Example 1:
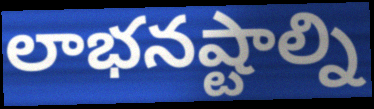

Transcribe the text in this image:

లాభనష్టాల్ని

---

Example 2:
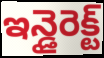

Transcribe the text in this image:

ఇన్డైరెక్ట్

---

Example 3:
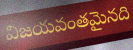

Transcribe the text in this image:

విజయవంతమైనది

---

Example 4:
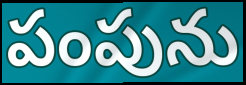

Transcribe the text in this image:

పంపును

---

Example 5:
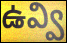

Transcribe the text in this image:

ఉవ్వి